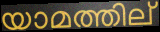
യാമത്തില്